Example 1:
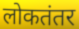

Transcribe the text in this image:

लोकतंतर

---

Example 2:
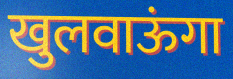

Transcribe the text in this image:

खुलवाऊंगा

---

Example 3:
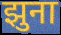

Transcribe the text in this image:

झुना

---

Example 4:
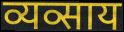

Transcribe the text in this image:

व्यव्साय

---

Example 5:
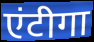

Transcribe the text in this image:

एंटीगा